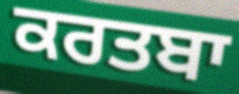
ਕਰਤਬਾ